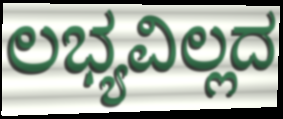
ಲಭ್ಯವಿಲ್ಲದ